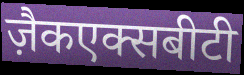
ज़ैकएक्सबीटी